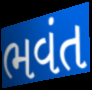
ભવંત